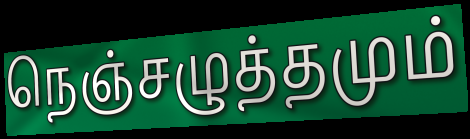
நெஞ்சழுத்தமும்